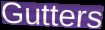
Gutters